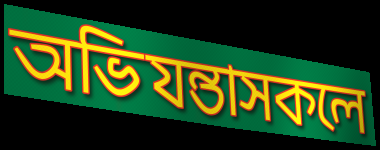
অভিযন্তাসকলে